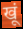
खूं